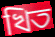
খিত